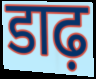
डाढ़